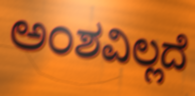
ಅಂಶವಿಲ್ಲದೆ